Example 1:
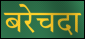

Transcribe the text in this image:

बरेचदा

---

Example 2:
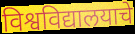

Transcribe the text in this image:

विश्वविद्यालयाचे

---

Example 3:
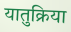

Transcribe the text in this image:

यातुक्रिया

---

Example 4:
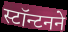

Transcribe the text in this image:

स्टॉन्टनने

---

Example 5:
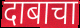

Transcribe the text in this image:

दाबाचा